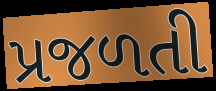
પ્રજળતી